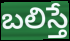
బలిస్తే